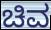
ಚಿವ